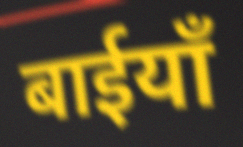
बाईयाँ